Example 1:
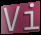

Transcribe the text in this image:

Vi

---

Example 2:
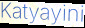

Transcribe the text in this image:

Katyayini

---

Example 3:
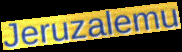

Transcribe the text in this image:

Jeruzalemu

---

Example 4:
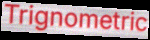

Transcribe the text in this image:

Trignometric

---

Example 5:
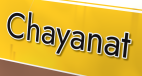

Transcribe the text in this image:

Chayanat